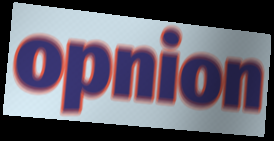
opnion